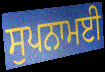
ਸੁਪਨਾਮਈ